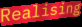
Realising